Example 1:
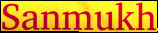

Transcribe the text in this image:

Sanmukh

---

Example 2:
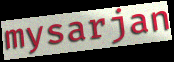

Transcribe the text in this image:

mysarjan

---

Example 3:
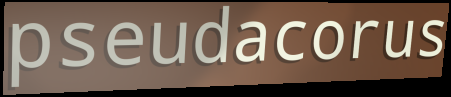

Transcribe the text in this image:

pseudacorus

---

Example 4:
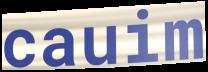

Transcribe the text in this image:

cauim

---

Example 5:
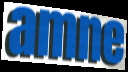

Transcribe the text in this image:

amne